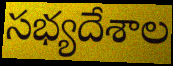
సభ్యదేశాల